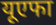
यूएफा